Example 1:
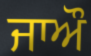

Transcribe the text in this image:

ਜਾਔ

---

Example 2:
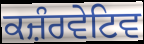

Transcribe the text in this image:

ਕਜ਼ੰਰਵੇਟਿਵ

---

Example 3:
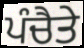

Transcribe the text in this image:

ਪੰਚੈਤੇ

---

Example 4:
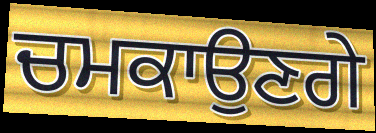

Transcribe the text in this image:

ਚਮਕਾਉਣਗੇ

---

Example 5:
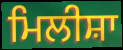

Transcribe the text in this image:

ਮਿਲੀਸ਼ਾ